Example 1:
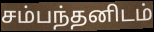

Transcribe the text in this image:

சம்பந்தனிடம்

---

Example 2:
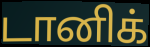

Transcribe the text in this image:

டானிக்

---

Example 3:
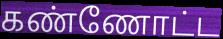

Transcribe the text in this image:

கண்ணோட்ட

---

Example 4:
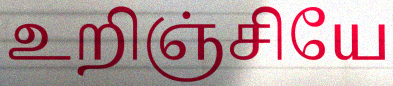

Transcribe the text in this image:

உறிஞ்சியே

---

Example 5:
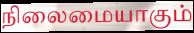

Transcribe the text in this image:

நிலைமையாகும்